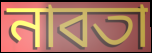
নাবতা